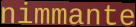
nimmante